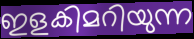
ഇളകിമറിയുന്ന